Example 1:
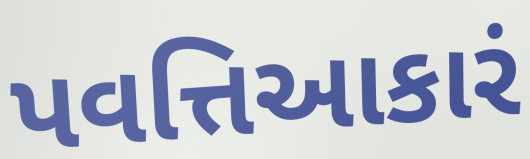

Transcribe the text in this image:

પવત્તિઆકારં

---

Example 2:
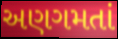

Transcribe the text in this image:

અણગમતાં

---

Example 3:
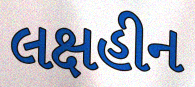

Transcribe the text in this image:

લક્ષહીન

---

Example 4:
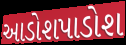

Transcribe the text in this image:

આડોશપાડોશ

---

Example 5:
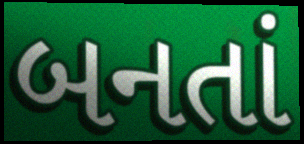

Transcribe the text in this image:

બનતાં